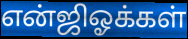
என்ஜிஓக்கள்